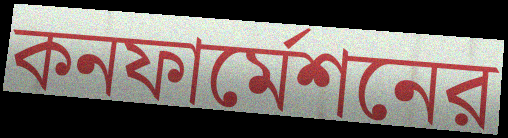
কনফার্মেশনের